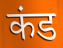
कंड